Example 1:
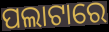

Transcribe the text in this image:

ପଲାଟାରେ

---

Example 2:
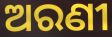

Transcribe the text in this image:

ଅରଣୀ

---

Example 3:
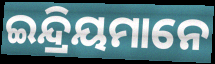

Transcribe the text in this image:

ଇନ୍ଦ୍ରିୟମାନେ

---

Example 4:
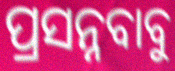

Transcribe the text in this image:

ପ୍ରସନ୍ନବାବୁ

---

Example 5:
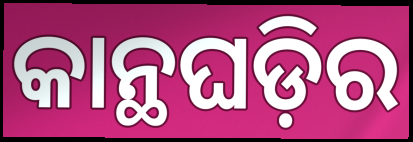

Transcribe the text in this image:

କାନ୍ଥଘଡ଼ିର